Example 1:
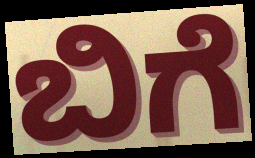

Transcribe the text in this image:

ಬಿಗೆ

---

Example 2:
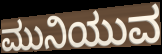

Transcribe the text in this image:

ಮುನಿಯುವ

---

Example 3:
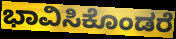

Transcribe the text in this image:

ಭಾವಿಸಿಕೊಂಡರೆ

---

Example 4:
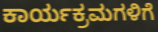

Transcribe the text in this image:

ಕಾರ್ಯಕ್ರಮಗಳಿಗೆ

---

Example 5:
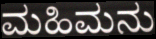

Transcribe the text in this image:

ಮಹಿಮನು